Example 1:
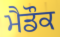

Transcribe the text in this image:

ਮੈਡੌਕ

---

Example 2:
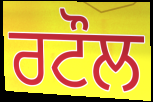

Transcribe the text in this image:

ਰਟੌਲ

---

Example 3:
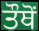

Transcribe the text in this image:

ਤੌਥੋਂ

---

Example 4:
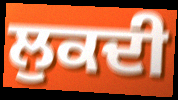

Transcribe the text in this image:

ਲੁਕਦੀ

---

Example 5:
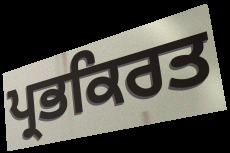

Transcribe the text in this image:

ਪ੍ਰਭਕਿਰਤ